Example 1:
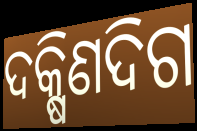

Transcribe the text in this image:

ଦକ୍ଷିଣଦିଗ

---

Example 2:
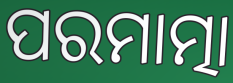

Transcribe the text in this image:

ପରମାତ୍ମା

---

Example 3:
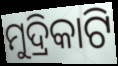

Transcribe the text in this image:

ମୁଦ୍ରିକାଟି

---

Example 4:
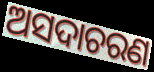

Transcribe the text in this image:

ଅସଦାଚରଣ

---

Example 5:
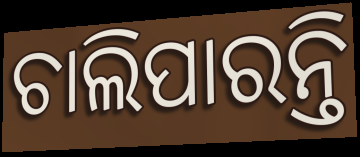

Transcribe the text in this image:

ଚାଲିପାରନ୍ତି